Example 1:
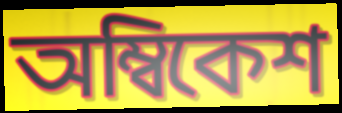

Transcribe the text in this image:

অম্বিকেশ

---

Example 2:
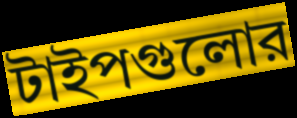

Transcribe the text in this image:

টাইপগুলোর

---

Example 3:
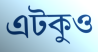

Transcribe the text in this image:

এটকুও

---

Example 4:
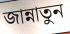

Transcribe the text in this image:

জান্নাতুন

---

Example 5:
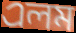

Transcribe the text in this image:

এলম